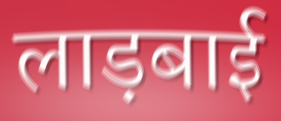
लाड़बाई